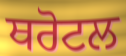
ਥਰੋਟਲ